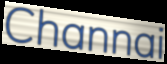
Channai